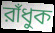
রাঁধুক